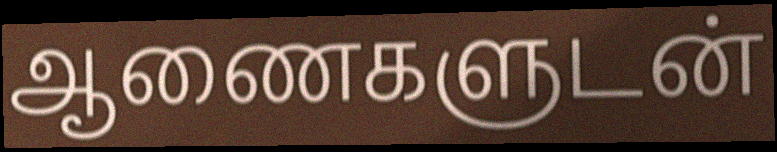
ஆணைகளுடன்